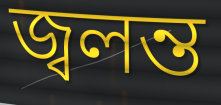
জ্বলন্ত